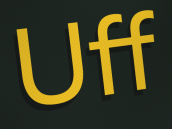
Uff